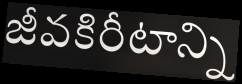
జీవకిరీటాన్ని